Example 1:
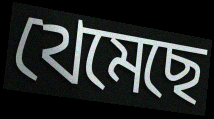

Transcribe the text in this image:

থেমেছে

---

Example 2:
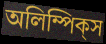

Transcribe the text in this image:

অলিম্পিক্‌স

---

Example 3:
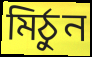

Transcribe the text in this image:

মিঠুন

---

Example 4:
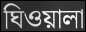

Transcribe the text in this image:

ঘিওয়ালা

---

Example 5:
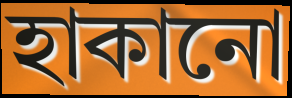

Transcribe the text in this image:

হাকানো